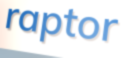
raptor